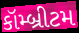
કૉમ્બ્રીટમ